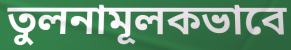
তুলনামূলকভাবে